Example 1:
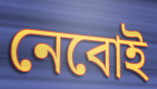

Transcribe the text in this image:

নেবোই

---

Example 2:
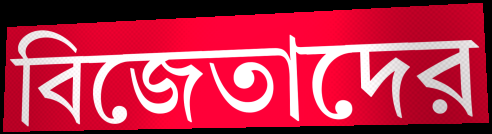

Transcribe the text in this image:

বিজেতাদের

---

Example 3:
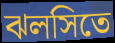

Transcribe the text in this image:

ঝলসিতে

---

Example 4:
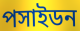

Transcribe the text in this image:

পসাইডন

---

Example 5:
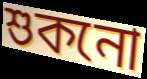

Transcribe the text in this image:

শুকনো